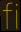
fi